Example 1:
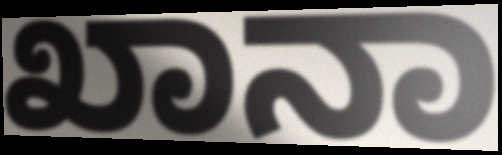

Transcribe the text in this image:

ಖಾನಾ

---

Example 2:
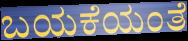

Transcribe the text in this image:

ಬಯಕೆಯಂತೆ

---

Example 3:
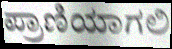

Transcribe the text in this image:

ಪ್ರಾಣಿಯಾಗಲಿ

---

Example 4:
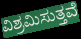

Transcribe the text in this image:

ವಿಶ್ರಮಿಸುತ್ತವೆ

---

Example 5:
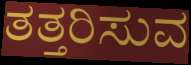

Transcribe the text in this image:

ತತ್ತರಿಸುವ